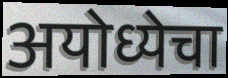
अयोध्येचा